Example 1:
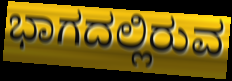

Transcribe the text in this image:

ಭಾಗದಲ್ಲಿರುವ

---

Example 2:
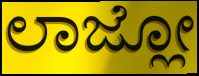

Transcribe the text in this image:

ಲಾಜ್ಲೋ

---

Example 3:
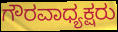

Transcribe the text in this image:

ಗೌರವಾಧ್ಯಕ್ಷರು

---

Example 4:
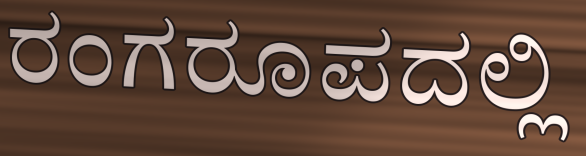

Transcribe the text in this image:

ರಂಗರೂಪದಲ್ಲಿ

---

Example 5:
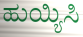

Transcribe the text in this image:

ಹುಯ್ಯಿಸಿ